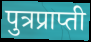
पुत्रप्राप्ती